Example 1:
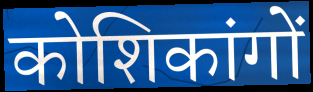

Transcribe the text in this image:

कोशिकांगों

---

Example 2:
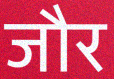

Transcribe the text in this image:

जौर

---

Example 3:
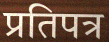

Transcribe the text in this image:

प्रतिपत्र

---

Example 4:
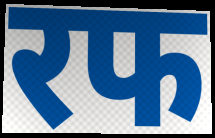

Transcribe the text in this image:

रफ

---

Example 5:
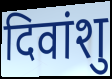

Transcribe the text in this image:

दिवांशु